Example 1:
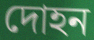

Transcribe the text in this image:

দোহন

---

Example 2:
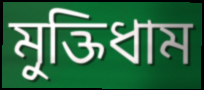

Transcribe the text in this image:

মুক্তিধাম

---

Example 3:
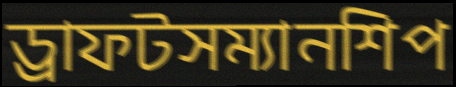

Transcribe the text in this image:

ড্রাফটসম্যানশিপ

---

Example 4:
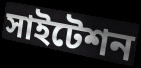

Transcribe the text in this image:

সাইটেশন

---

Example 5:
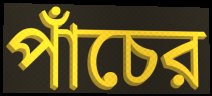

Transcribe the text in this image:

পাঁচের